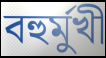
বহুর্মুখী